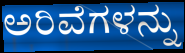
ಅರಿವೆಗಳನ್ನು